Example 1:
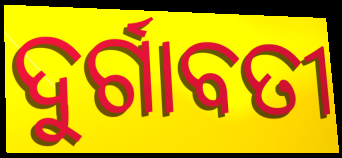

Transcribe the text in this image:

ଦୁର୍ଗାବତୀ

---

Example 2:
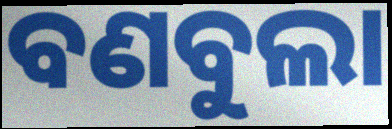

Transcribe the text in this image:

ବଣବୁଲା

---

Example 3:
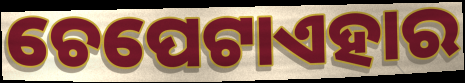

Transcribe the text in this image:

ଚେପେଟାଏହାର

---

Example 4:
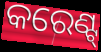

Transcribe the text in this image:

କରେଣ୍ଟ୍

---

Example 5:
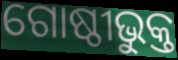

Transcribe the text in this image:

ଗୋଷ୍ଠୀଭୁକ୍ତ